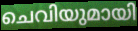
ചെവിയുമായി